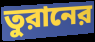
তুরানের